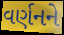
વર્ણનને